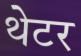
थेटर